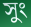
সুং